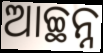
ଆଚ୍ଛନ୍ନ